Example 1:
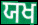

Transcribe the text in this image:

ਯਖ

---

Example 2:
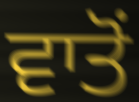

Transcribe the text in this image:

ਵਾਤੋਂ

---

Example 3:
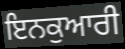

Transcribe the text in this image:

ਇਨਕੁਆਰੀ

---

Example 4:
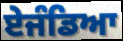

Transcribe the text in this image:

ਏਜੰਡਿਆ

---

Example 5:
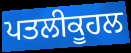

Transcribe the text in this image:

ਪਤਲੀਕੂਹਲ